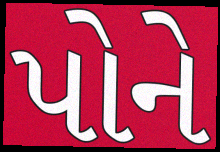
પોને